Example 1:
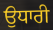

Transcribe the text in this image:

ਉਧਾਰੀ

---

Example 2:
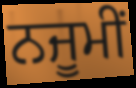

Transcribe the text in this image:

ਨਜੂਮੀਂ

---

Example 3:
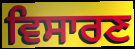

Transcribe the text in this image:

ਵਿਸਾਰਣ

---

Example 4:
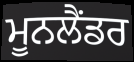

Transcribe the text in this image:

ਮੂਨਲੈਂਡਰ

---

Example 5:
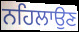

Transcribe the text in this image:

ਨਹਿਲਾਉਣ